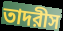
তাদরীস